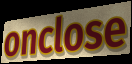
onclose